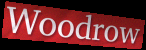
Woodrow